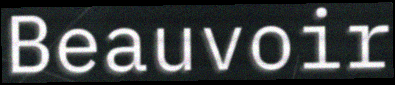
Beauvoir